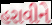
હરાવીને